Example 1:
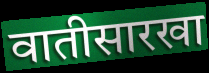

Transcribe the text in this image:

वातीसारखा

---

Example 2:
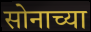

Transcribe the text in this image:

सोनाच्या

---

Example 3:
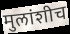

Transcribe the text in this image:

मुलांशीच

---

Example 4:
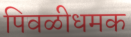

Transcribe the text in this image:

पिवळीधमक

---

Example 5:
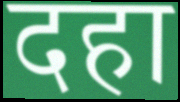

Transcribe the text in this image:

दहा